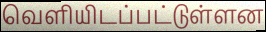
வெளியிடப்பட்டுள்ளன